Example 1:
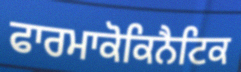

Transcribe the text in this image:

ਫਾਰਮਾਕੋਕਿਨੈਟਿਕ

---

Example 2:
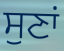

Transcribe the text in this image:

ਸੁਣਾਂ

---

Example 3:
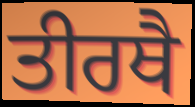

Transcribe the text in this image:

ਤੀਰਥੈ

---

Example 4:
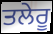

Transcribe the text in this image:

ਤਲੇਰੂ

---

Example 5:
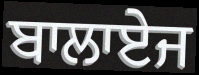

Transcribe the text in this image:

ਬਾਲਾਏਜ